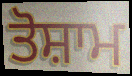
ਤੋਸ਼ਾਮ